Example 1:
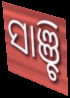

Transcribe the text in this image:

ସାଞ୍ଚି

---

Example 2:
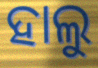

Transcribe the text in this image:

ହାଲୁ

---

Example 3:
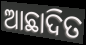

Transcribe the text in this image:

ଆଛାଦିତ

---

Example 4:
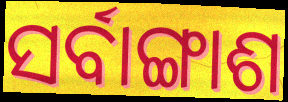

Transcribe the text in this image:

ସର୍ବାଙ୍ଗାଶ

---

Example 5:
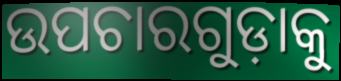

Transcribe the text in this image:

ଉପଚାରଗୁଡ଼ାକୁ